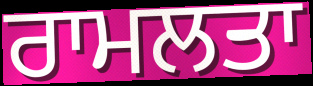
ਰਾਮਲਤਾ